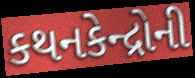
કથનકેન્દ્રોની